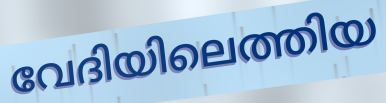
വേദിയിലെത്തിയ